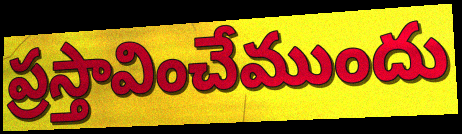
ప్రస్తావించేముందు